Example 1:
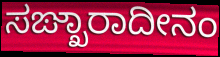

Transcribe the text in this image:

ಸಙ್ಖಾರಾದೀನಂ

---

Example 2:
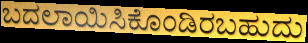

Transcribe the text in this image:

ಬದಲಾಯಿಸಿಕೊಂಡಿರಬಹುದು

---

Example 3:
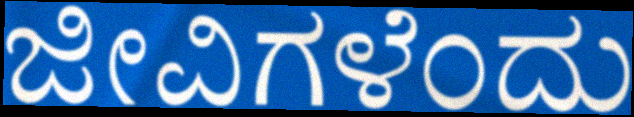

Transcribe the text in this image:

ಜೀವಿಗಳೆಂದು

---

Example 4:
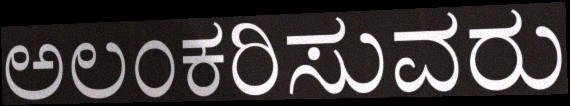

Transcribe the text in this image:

ಅಲಂಕರಿಸುವರು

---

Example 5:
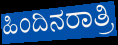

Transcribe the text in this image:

ಹಿಂದಿನರಾತ್ರಿ